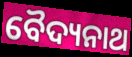
ବୈଦ୍ୟନାଥ